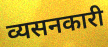
व्यसनकारी